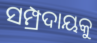
ସମ୍ପ୍ରଦାୟକୁ